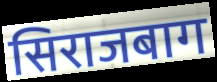
सिराजबाग